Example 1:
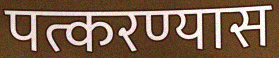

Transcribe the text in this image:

पत्करण्यास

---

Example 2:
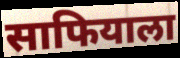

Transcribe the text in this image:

साफियाला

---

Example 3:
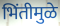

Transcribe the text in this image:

भिंतीमुळे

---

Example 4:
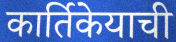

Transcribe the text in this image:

कार्तिकेयाची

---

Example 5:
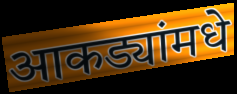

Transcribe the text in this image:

आकड्यांमधे